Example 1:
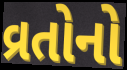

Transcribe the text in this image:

વ્રતોનો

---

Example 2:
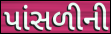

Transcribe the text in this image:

પાંસળીની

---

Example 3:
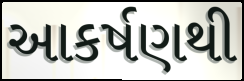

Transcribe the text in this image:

આકર્ષણથી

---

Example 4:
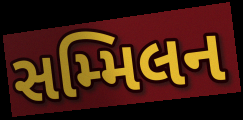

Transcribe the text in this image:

સમ્મિલન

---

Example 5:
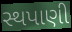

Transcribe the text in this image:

સ્થપાણી